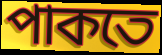
পাকতে